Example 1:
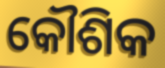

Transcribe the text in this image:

କୌଶିକ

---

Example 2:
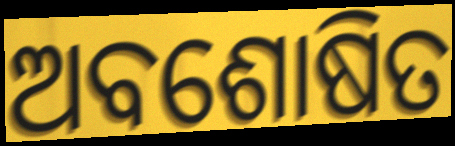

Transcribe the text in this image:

ଅବଶୋଷିତ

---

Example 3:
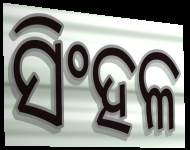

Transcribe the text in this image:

ସିଂହଳ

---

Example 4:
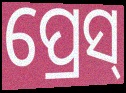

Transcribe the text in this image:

ପ୍ରେସ୍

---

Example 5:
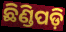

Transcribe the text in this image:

ଛିଣ୍ଡିପଡ଼ି